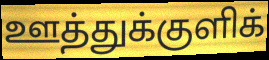
ஊத்துக்குளிக்